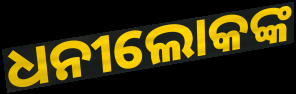
ଧନୀଲୋକଙ୍କ